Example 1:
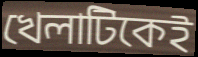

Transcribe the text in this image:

খেলাটিকেই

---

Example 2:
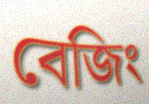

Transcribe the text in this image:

বেজিং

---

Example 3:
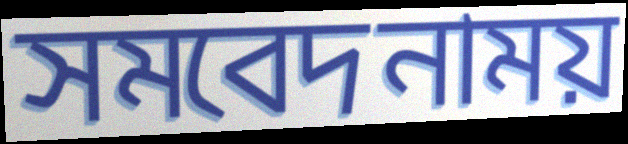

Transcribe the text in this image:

সমবেদনাময়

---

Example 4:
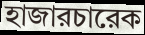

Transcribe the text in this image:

হাজারচারেক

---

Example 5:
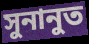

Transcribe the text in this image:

সুনানুত